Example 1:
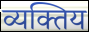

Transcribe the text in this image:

व्यक्तिय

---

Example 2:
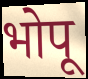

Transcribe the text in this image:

भोपू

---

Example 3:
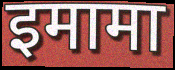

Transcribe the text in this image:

इमामा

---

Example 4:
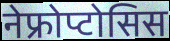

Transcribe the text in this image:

नेफ्रोप्टोसिस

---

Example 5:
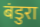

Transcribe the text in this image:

बंडुरा